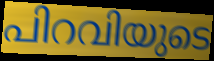
പിറവിയുടെ